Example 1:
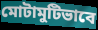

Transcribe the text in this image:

মোটামুটিভাবে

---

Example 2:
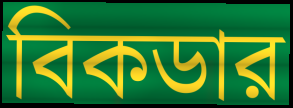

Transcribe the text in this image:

বিকডার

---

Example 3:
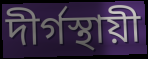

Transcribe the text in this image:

দীর্গস্থায়ী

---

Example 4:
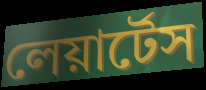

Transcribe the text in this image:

লেয়ার্টেস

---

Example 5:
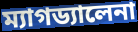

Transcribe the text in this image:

ম্যাগড্যালেনা